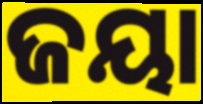
ଜୟା